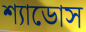
শ্যাডোস